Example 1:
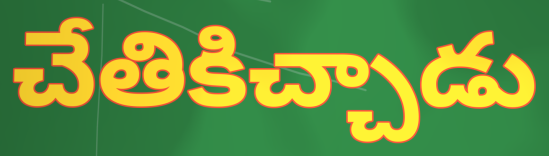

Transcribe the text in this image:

చేతికిచ్చాడు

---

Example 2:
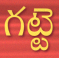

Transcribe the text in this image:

గట్టె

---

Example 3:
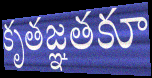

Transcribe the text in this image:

కృతజ్ఞతకూ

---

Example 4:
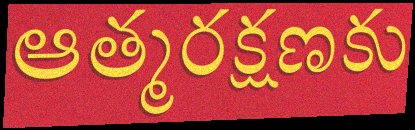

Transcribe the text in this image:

ఆత్మరక్షణకు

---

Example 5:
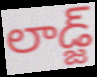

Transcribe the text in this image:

లాడ్జ్